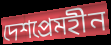
দেশপ্ৰেমহীন